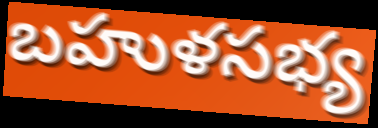
బహుళసభ్య